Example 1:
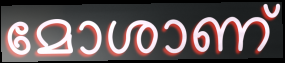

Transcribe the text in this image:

മോശാണ്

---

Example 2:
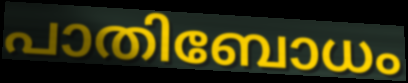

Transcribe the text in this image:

പാതിബോധം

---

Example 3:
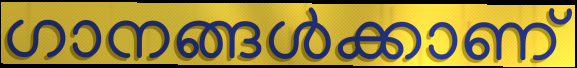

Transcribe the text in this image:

ഗാനങ്ങൾക്കാണ്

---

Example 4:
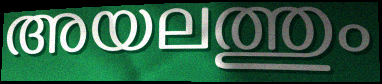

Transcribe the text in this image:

അയലത്തും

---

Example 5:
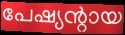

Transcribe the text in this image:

പേഷ്യന്റായ